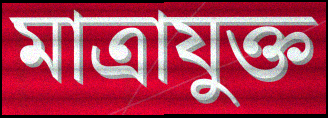
মাত্ৰাযুক্ত